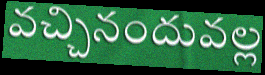
వచ్చినందువల్ల